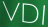
VDI